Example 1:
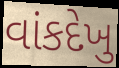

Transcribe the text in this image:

વાંકદેખુ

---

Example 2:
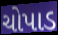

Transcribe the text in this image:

ચોપાડ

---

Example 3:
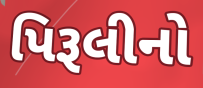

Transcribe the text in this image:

પિરૂલીનો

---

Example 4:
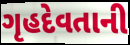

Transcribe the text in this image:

ગૃહદેવતાની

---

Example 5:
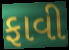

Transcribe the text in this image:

ફાવી